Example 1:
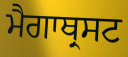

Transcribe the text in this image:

ਮੈਗਾਥ੍ਰਸਟ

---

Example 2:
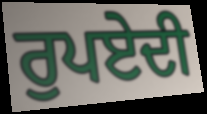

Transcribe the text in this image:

ਰੁਪਏਦੀ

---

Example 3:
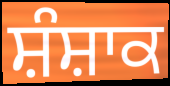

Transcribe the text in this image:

ਸ਼ੰਸ਼ਾਕ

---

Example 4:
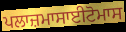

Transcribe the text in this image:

ਪਲਾਜ਼ਮਾਸਾਈਟੋਮਾਸ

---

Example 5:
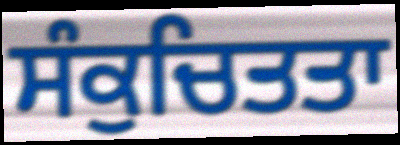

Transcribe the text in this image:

ਸੰਕੁਚਿਤਤਾ